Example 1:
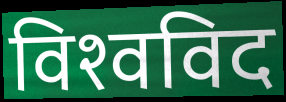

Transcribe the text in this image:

विश्वविद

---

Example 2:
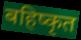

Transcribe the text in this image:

बहिष्कृत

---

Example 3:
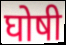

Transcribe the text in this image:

घोषी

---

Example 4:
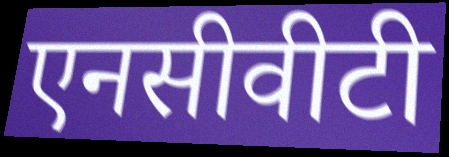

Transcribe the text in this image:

एनसीवीटी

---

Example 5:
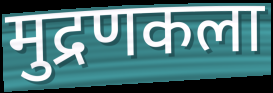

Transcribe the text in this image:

मुद्रणकला